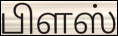
பிளஸ்